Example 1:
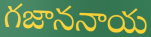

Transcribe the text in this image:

గజాననాయ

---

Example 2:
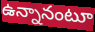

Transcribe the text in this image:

ఉన్నానంటూ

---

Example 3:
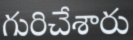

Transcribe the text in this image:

గురిచేశారు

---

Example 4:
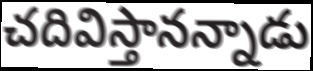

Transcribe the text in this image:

చదివిస్తానన్నాడు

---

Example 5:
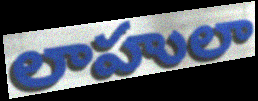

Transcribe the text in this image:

లాహులా